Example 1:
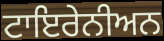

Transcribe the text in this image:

ਟਾਇਰੇਨੀਅਨ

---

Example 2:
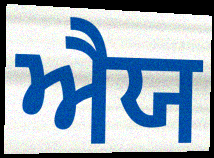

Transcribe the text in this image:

ਐਯ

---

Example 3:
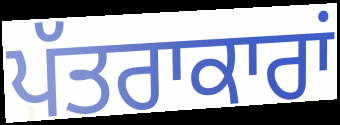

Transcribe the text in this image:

ਪੱਤਰਾਕਾਰਾਂ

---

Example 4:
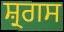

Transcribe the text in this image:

ਸ਼੍ਰਗਸ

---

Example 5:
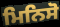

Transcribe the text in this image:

ਮਿਨਿਸੋ